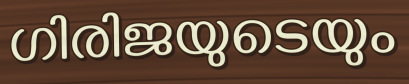
ഗിരിജയുടെയും